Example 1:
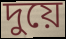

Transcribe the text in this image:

দুয়ে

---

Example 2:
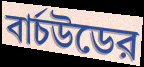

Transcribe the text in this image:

বার্চউডের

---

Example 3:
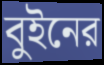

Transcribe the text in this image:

বুইনের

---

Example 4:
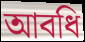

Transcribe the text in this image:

আবধি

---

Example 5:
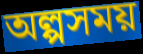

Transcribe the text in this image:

অল্পসময়